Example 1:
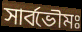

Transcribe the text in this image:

সার্বভৌমঃ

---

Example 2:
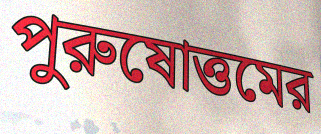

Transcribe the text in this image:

পুরুষোত্তমের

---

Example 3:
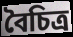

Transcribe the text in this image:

বৈচিত্র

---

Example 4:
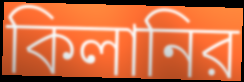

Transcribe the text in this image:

কিলানির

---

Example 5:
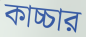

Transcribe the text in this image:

কাচ্চার